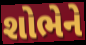
શોભેને